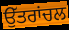
ਉੱਤਰਾਂਚਲ